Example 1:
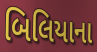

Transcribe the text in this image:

બિલિયાના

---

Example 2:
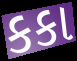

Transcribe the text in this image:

કકા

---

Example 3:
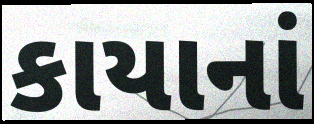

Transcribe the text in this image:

કાયાનાં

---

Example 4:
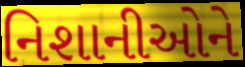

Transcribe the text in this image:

નિશાનીઓને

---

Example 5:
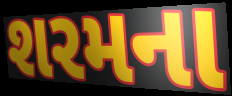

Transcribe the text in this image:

શરમના